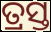
ତ୍ରସ୍ତ